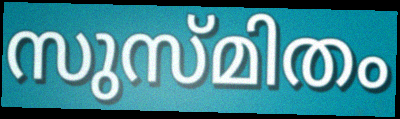
സുസ്മിതം